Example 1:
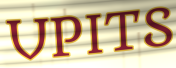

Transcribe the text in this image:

UPITS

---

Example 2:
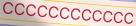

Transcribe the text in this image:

CCCCCCCCCCCC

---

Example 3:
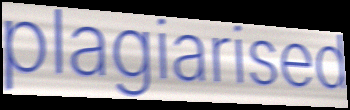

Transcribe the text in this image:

plagiarised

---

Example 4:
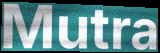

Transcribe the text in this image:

Mutra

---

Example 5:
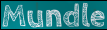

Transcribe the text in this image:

Mundle